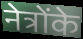
नेत्रोंके